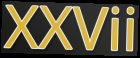
XXVii